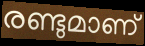
രണ്ടുമാണ്